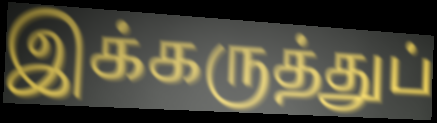
இக்கருத்துப்